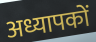
अध्यापकों